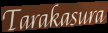
Tarakasura